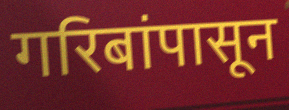
गरिबांपासून